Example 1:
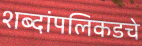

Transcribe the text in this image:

शब्दांपलिकडचे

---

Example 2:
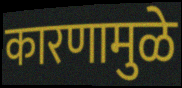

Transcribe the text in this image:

कारणामुळे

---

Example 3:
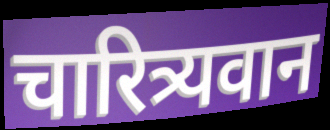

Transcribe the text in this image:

चारित्र्यवान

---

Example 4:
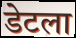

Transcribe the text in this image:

डेटला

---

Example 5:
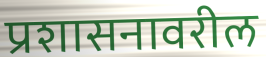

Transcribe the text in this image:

प्रशासनावरील